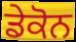
ਡੇਕੋਨ